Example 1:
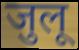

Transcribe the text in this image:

जुलू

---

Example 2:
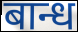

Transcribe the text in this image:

बान्ध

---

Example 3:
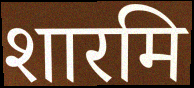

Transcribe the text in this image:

शारमि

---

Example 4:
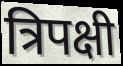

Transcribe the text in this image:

त्रिपक्षी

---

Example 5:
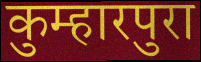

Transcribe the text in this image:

कुम्हारपुरा